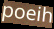
poeih